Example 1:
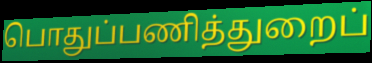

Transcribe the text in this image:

பொதுப்பணித்துறைப்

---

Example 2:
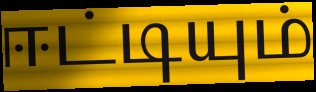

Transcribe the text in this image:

ஈட்டியும்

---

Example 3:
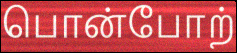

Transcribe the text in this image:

பொன்போற்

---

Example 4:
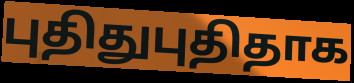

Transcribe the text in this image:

புதிதுபுதிதாக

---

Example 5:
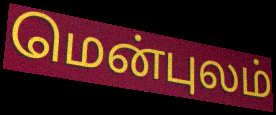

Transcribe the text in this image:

மென்புலம்